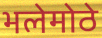
भलेमोठे